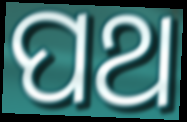
ପଥ